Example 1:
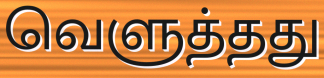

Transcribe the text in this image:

வெளுத்தது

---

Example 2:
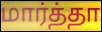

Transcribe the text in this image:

மார்த்தா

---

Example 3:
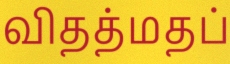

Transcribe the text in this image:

விதத்மதப்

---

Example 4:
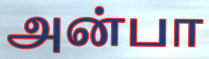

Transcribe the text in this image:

அன்பா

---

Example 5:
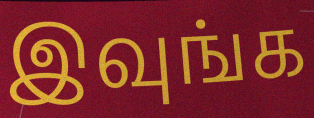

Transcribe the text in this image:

இவுங்க